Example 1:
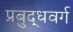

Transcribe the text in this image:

प्रबुद्धवर्ग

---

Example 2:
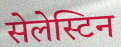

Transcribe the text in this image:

सेलेस्टिन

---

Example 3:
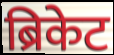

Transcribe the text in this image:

ब्रिकेट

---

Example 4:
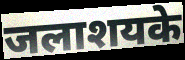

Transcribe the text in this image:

जलाशयके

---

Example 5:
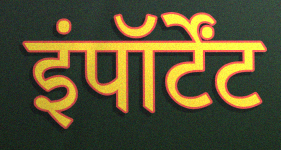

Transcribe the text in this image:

इंपॉर्टेंट